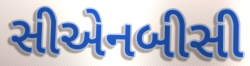
સીએનબીસી